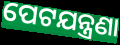
ପେଟଯନ୍ତ୍ରଣା